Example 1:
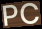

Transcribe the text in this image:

PC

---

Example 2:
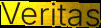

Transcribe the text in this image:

Veritas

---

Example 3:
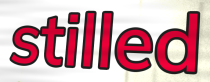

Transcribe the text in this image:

stilled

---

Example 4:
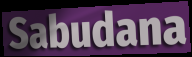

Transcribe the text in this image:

Sabudana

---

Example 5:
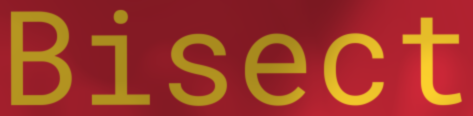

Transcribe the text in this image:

Bisect